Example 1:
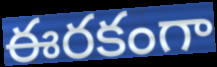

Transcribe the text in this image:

ఈరకంగా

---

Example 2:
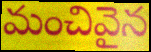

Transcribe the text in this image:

మంచివైన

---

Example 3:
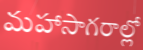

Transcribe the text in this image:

మహాసాగరాల్లో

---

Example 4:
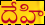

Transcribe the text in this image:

దేహి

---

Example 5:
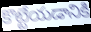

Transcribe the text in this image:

కొట్టేయడానికి